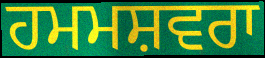
ਹਮਮਸ਼ਵਰਾ